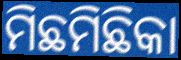
ମିଛମିଛିକା